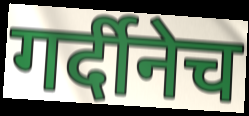
गर्दीनेच